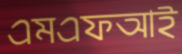
এমএফআই